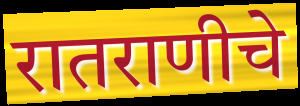
रातराणीचे